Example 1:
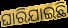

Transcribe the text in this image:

ଘାରିଯାଇଛି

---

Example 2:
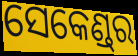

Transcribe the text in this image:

ସେକେଣ୍ଡ୍‌ର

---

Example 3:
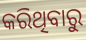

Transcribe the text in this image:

କରିଥିବାରୁ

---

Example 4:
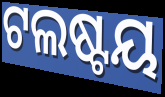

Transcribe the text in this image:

ଟଲଷ୍ଟୟ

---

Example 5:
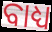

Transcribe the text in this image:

ବାଧ୍ୟ